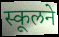
स्कूलने